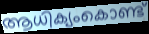
ആധിക്യംകൊണ്ട്